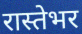
रास्तेभर